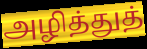
அழித்துத்